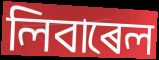
লিবাৰেল